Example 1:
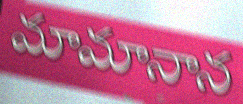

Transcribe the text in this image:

మామానాన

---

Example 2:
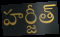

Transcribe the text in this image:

హర్జీత్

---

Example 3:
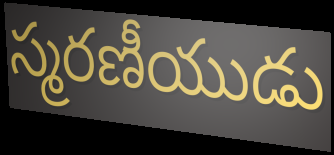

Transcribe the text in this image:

స్మరణీయుడు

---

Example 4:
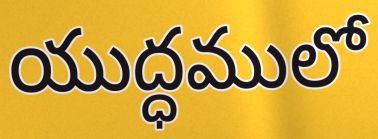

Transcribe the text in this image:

యుద్ధములో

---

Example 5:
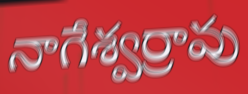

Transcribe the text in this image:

నాగేశ్వర్రావు